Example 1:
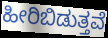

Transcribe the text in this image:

ಹೀರಿಬಿಡುತ್ತವೆ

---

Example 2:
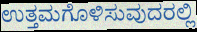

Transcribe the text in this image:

ಉತ್ತಮಗೊಳಿಸುವುದರಲ್ಲಿ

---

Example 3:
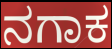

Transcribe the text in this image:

ನಗಾಕ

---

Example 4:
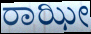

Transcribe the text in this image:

ರಾಝೀ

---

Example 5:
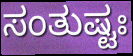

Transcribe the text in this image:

ಸಂತುಷ್ಟಃ